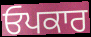
ਓਪਕਾਰ